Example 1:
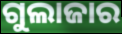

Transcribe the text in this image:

ଗୁଲାଜାର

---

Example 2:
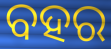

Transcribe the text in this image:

ବହର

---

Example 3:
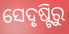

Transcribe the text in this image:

ସେଦୃଷ୍ଟିରୁ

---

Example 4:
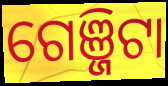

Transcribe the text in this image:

ଗେଞ୍ଜିଟା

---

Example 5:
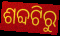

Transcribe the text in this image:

ଶବ୍ଦଟିରୁ